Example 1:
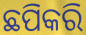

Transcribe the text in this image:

ଛପିକରି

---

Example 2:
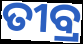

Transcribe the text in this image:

ତୀବ୍ର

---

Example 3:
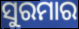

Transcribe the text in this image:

ସୁରମାର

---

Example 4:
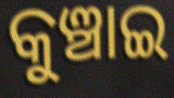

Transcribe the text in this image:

କୁଞ୍ଚାଇ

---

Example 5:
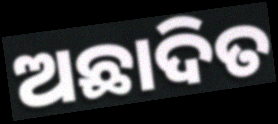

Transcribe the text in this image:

ଅଛାଦିତ